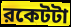
রকেটটা